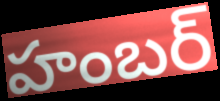
హంబర్